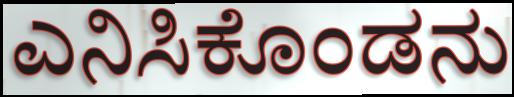
ಎನಿಸಿಕೊಂಡನು